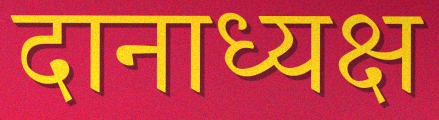
दानाध्यक्ष